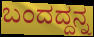
ಬಂದದ್ದನ್ನ